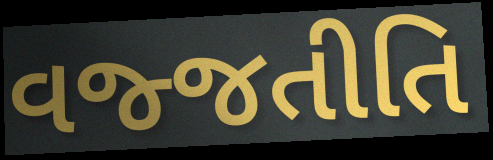
વજ્જતીતિ